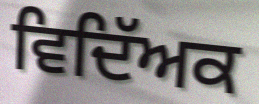
ਵਿਦਿੱਅਕ